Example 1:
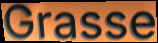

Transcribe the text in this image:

Grasse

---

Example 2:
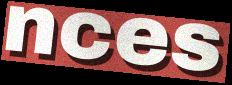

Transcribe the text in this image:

nces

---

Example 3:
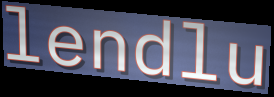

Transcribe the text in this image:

lendlu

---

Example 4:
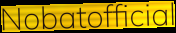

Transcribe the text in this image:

Nobatofficial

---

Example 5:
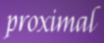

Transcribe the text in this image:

proximal